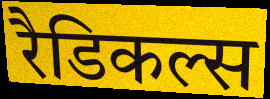
रैडिकल्स